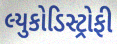
લ્યુકોડિસ્ટ્રોફી